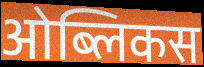
ओब्लिकस